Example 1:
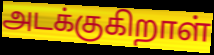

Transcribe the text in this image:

அடக்குகிறாள்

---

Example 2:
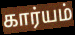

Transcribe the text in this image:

கார்யம்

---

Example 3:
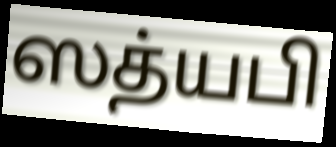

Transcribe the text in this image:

ஸத்யபி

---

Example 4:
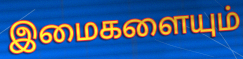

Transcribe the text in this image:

இமைகளையும்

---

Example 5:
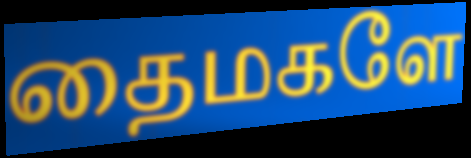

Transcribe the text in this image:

தைமகளே